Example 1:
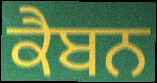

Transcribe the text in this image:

ਕੈਬਨ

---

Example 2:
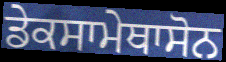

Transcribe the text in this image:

ਡੇਕਸਾਮੇਥਾਸੋਨ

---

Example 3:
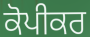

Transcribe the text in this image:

ਕੋਪੀਕਰ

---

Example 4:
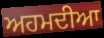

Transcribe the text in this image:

ਅਹਮਦੀਆ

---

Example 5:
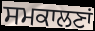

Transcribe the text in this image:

ਸਮਕਾਲਣਾਂ